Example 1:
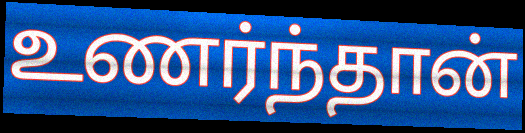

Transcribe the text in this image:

உணர்ந்தான்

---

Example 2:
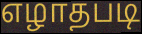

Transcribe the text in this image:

எழாதபடி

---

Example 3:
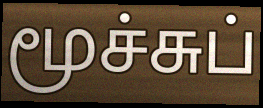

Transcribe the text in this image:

மூச்சுப்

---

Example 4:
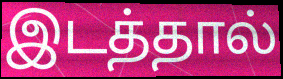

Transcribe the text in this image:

இடத்தால்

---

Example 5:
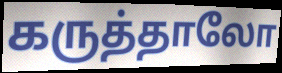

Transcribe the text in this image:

கருத்தாலோ